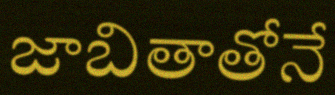
జాబితాతోనే